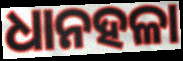
ଧାନହଳା